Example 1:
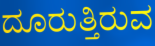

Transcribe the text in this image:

ದೂರುತ್ತಿರುವ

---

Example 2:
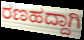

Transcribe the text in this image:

ರಣಹದ್ದಾಗಿ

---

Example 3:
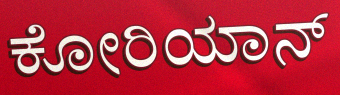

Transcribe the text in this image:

ಕೋರಿಯಾನ್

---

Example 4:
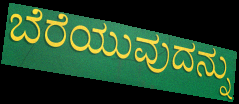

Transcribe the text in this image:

ಬೆರೆಯುವುದನ್ನು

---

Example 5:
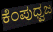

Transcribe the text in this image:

ಕೆಂಪುಧ್ವಜ